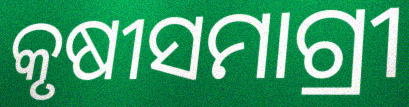
କୃଷୀସମାଗ୍ରୀ